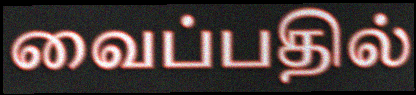
வைப்பதில்